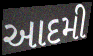
આદમી